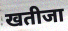
खतीजा